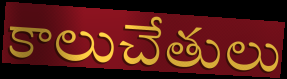
కాలుచేతులు